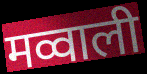
मव्वाली